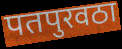
पतपुरवठा